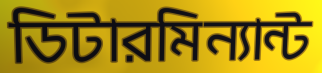
ডিটারমিন্যান্ট